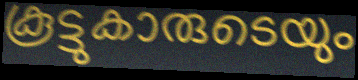
കൂട്ടുകാരുടെയും